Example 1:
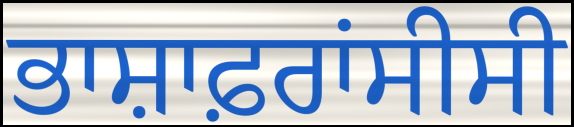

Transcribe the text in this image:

ਭਾਸ਼ਾਫ਼ਰਾਂਸੀਸੀ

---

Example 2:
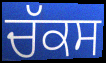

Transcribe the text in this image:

ਚੱਕਸ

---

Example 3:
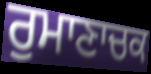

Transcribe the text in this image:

ਰੁਮਾਣਾਚਕ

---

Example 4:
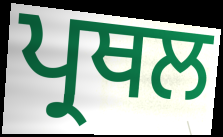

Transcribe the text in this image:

ਪ੍ਰਥਲ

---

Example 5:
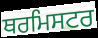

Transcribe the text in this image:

ਥਰਮਿਸਟਰ